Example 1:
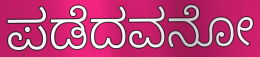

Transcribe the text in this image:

ಪಡೆದವನೋ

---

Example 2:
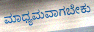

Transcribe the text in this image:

ಮಾಧ್ಯಮವಾಗಬೇಕು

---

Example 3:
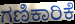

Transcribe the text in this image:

ಗಣಿಕಾರಿಕೆ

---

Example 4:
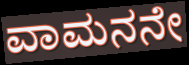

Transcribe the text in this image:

ವಾಮನನೇ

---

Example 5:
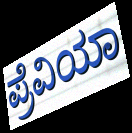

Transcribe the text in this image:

ಪ್ರೆವಿಯಾ